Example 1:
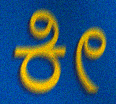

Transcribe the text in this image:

ಕೀ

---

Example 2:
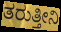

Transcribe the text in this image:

ತರುತ್ತೀನಿ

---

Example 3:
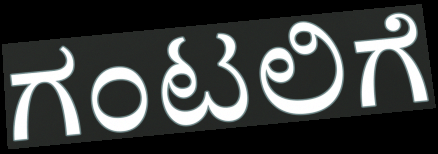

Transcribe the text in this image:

ಗಂಟಲಿಗೆ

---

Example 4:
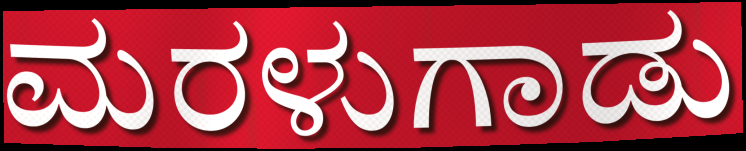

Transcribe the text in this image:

ಮರಳುಗಾಡು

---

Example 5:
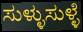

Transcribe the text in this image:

ಸುಳ್ಳುಸುಳ್ಳೆ